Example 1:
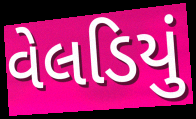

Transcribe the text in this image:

વેલડિયું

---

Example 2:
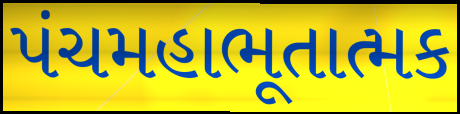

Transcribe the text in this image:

પંચમહાભૂતાત્મક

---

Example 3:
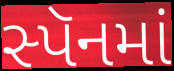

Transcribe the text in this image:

સ્પૅનમાં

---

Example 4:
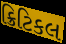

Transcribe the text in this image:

ક્રિટિકલ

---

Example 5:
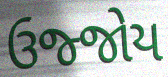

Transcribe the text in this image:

ઉજ્જોય